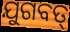
ଯୁଗବତ୍